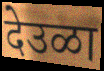
देउळा